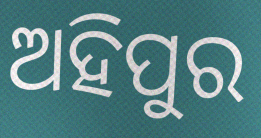
ଅହିପୁର